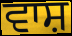
ਵਾਸ਼